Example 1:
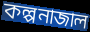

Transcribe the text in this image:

কল্পনাজাল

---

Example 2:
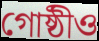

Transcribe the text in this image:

গোষ্ঠীও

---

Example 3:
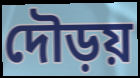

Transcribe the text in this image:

দৌড়য়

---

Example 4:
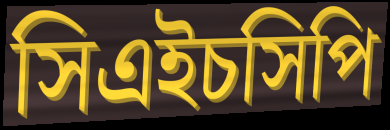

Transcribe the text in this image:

সিএইচসিপি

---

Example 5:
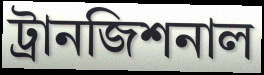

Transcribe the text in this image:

ট্রানজিশনাল